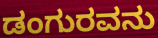
ಡಂಗುರವನು